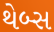
થેબ્સ